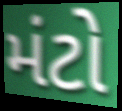
મંટો